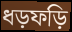
ধড়ফড়ি